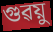
গুৱয়ু